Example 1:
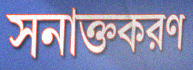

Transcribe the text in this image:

সনাক্তকরণ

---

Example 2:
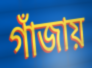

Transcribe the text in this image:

গাঁজায়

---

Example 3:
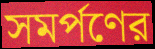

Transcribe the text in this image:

সমর্পণের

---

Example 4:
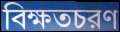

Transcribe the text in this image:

বিক্ষতচরণ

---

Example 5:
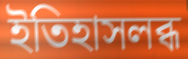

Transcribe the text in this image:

ইতিহাসলব্ধ